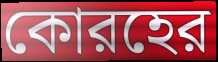
কোরহের